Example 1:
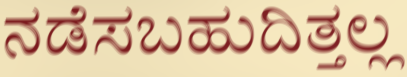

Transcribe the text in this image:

ನಡೆಸಬಹುದಿತ್ತಲ್ಲ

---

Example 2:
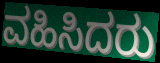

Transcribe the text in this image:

ವಹಿಸಿದರು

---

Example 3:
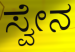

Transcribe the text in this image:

ಸ್ವೇನ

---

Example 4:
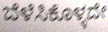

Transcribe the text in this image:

ಬೆಳೆಸಿಕೊಳ್ಳದೇ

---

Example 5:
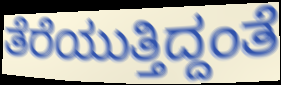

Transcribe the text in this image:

ತೆರೆಯುತ್ತಿದ್ದಂತೆ